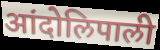
आंदोलिपाली